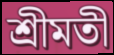
শ্ৰীমতী